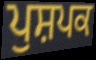
ਪੁਸ਼ਪਕ